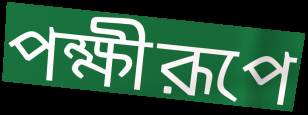
পক্ষীরূপে